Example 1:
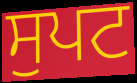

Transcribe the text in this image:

ਸੁਪਟ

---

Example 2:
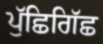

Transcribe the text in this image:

ਪੁੱਛਿਗਿੱਛ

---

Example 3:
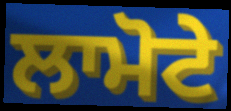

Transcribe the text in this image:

ਲਾਮੋਟੇ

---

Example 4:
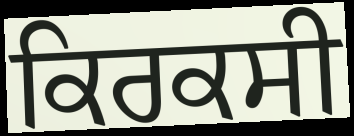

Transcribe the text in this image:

ਕਿਰਕਸੀ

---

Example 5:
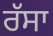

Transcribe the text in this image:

ਰੱਸਾ